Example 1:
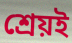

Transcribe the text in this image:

শ্রেয়ই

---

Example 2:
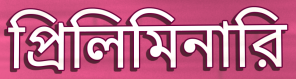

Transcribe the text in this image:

প্রিলিমিনারি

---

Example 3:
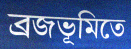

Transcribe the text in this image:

ব্রজভূমিতে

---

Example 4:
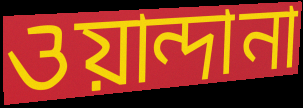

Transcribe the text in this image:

ওয়ান্দানা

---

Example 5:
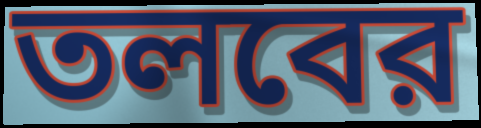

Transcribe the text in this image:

তলবের